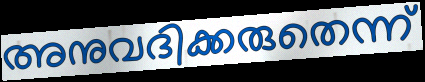
അനുവദിക്കരുതെന്ന്